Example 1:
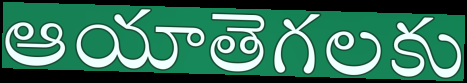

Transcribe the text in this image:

ఆయాతెగలకు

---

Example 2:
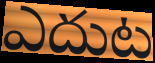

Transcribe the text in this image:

ఎదుట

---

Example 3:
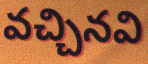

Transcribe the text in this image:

వచ్చినవి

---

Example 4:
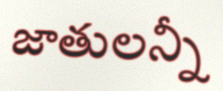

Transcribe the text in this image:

జాతులన్నీ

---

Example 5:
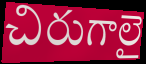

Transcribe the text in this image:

చిరుగాలై